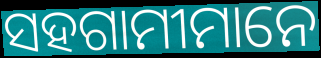
ସହଗାମୀମାନେ